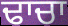
ਢਾਚਾ